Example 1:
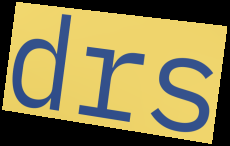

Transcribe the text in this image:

drs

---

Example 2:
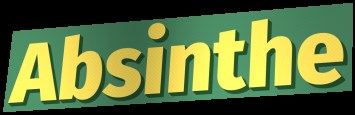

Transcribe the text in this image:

Absinthe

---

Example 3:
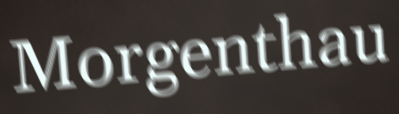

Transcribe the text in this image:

Morgenthau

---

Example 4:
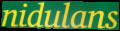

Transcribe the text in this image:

nidulans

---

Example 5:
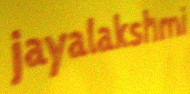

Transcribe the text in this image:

jayalakshmi